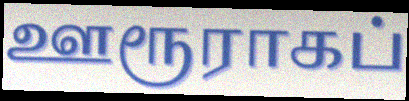
ஊரூராகப்